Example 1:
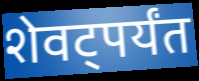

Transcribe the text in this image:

शेवट्पर्यंत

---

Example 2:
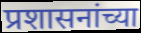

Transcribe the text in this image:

प्रशासनांच्या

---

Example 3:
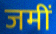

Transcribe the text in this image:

जमीं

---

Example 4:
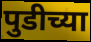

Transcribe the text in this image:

पुडीच्या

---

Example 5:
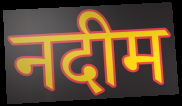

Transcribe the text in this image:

नदीम